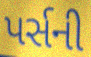
પર્સની